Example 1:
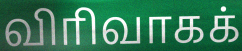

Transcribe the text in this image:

விரிவாகக்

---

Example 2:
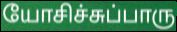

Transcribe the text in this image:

யோசிச்சுப்பாரு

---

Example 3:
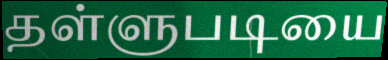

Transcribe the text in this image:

தள்ளுபடியை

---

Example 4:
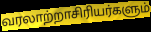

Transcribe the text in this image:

வரலாற்றாசிரியர்களும்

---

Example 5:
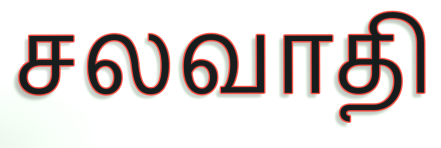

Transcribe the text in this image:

சலவாதி